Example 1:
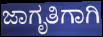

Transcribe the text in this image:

ಜಾಗೃತಿಗಾಗಿ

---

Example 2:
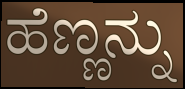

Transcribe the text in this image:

ಹೆಣ್ಣನ್ನು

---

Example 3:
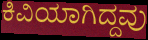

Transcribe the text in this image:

ಕಿವಿಯಾಗಿದ್ದವು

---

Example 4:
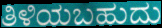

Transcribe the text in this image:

ತಿಳಿಯಬಹುದು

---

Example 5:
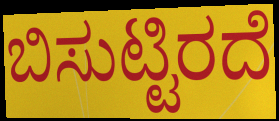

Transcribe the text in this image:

ಬಿಸುಟ್ಟಿರದೆ